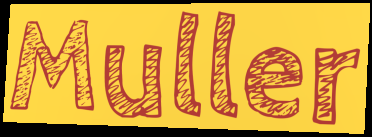
Muller